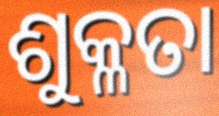
ଶୁକ୍ଳତା